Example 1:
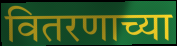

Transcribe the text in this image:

वितरणाच्या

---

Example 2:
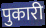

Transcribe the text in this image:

पुकारी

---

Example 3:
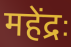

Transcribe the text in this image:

महेंद्रः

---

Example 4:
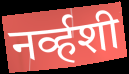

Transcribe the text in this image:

नर्व्हशी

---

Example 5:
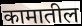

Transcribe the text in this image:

कामातील